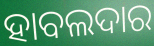
ହାବଲଦାର